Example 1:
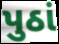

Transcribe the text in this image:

પુઠાં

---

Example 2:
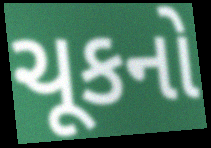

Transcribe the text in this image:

ચૂકનો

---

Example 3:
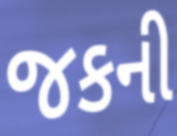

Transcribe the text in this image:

જકની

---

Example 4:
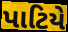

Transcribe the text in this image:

પાટિયે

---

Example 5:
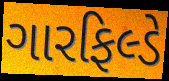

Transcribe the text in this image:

ગારફિલ્ડે